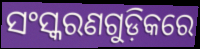
ସଂସ୍କରଣଗୁଡ଼ିକରେ